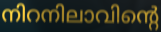
നിറനിലാവിന്റെ